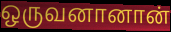
ஒருவனானான்